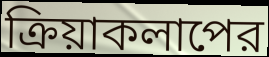
ক্রিয়াকলাপের